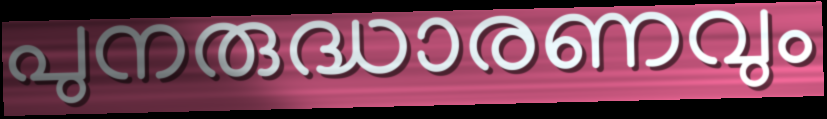
പുനരുദ്ധാരണവും